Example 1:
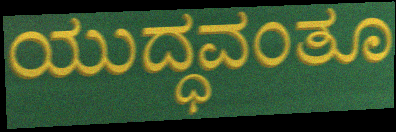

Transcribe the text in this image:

ಯುದ್ಧವಂತೂ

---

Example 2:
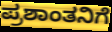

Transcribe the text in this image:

ಪ್ರಶಾಂತನಿಗೆ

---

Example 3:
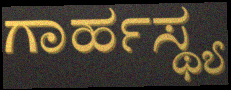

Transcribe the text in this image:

ಗಾರ್ಹಸ್ಥ್ಯ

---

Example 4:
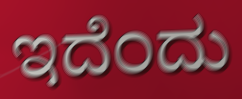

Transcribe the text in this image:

ಇದೆಂದು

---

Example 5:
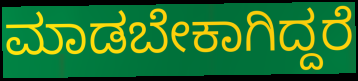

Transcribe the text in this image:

ಮಾಡಬೇಕಾಗಿದ್ದರೆ